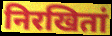
निरखितां